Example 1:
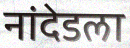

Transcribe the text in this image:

नांदेडला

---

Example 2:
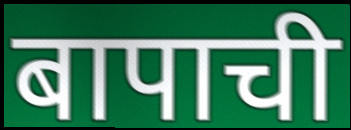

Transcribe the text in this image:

बापाची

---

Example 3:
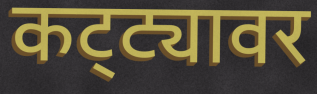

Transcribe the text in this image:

कट्ट्यावर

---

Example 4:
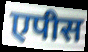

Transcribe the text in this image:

एपीस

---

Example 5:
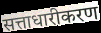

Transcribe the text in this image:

सत्ताधारीकरण